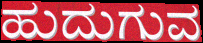
ಹುದುಗುವ